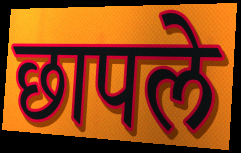
छापले